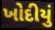
ખોદીયું